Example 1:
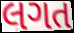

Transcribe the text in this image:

લગત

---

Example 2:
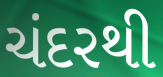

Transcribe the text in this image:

ચંદરથી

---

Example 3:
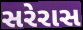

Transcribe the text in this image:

સરેરાસ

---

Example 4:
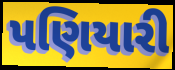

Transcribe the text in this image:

પણિયારી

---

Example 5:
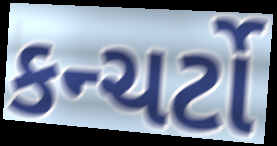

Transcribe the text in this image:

કન્ચર્ટો